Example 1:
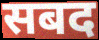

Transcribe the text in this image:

सबद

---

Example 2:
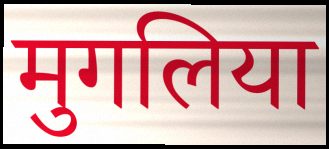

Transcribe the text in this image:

मुगलिया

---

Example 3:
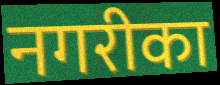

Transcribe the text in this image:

नगरीका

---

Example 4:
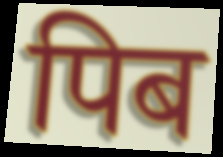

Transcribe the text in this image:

पिब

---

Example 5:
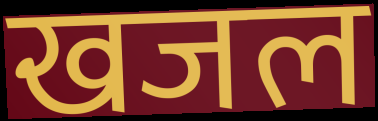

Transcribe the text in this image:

खजल